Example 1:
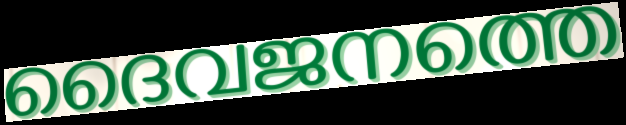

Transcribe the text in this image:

ദൈവജനത്തെ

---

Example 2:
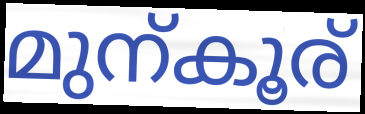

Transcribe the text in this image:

മുന്കൂര്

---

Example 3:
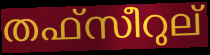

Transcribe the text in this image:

തഫ്സീറുല്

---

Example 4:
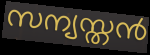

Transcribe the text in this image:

സന്യസ്തൻ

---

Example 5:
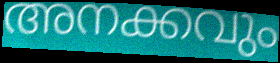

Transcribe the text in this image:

അനക്കവും